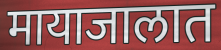
मायाजालात